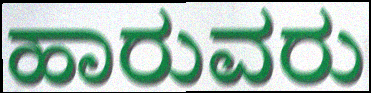
ಹಾರುವರು